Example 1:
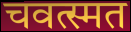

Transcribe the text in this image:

चवत्स्मत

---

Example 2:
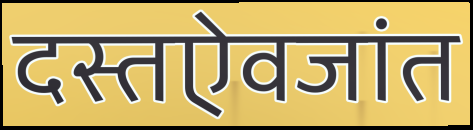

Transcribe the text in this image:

दस्तऐवजांत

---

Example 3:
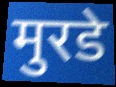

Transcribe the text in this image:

मुरडे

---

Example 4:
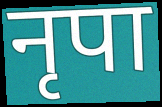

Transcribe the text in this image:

नृपा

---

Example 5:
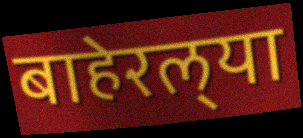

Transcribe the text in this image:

बाहेरल्या